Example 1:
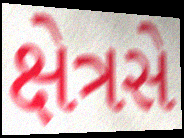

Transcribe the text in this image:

ક્ષેત્રસે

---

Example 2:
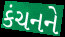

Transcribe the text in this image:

કંચનને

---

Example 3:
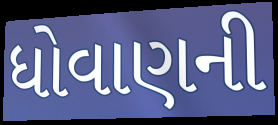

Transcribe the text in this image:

ધોવાણની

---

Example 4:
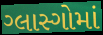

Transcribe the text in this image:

ગ્લાસ્ગોમાં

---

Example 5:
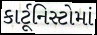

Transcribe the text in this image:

કાર્ટૂનિસ્ટોમાં